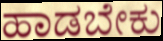
ಹಾಡಬೇಕು